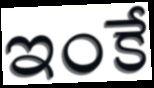
ఇంకే